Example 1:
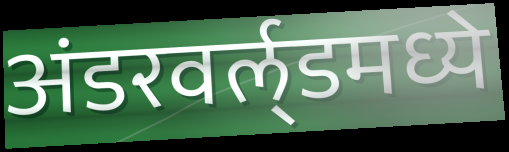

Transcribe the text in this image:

अंडरवर्ल्डमध्ये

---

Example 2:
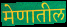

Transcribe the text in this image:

मेणातील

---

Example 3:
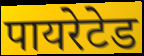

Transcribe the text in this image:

पायरेटेड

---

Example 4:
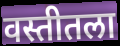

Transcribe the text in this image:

वस्तीतला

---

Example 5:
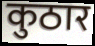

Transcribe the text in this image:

कुठार